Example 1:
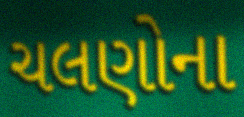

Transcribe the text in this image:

ચલણોના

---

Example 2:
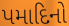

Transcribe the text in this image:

પમાદિનો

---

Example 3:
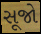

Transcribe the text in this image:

સૂજો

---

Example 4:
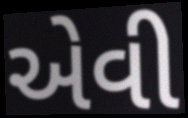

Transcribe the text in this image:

એવી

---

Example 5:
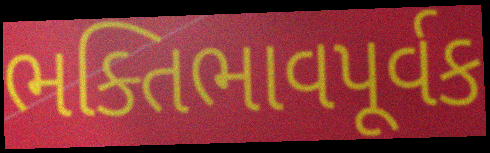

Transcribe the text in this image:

ભક્તિભાવપૂર્વક